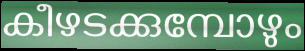
കീഴടക്കുമ്പോഴും